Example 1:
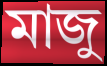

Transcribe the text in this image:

মাজু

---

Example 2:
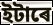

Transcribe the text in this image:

ইটাৰে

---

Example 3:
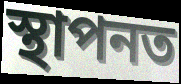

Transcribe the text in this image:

স্থাপনত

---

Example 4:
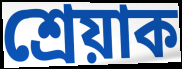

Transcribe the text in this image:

শ্ৰেয়াক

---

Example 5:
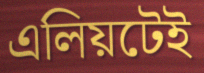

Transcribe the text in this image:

এলিয়টেই